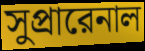
সুপ্রারেনাল